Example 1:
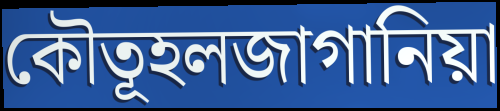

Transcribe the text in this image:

কৌতূহলজাগানিয়া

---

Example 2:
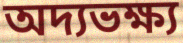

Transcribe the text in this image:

অদ্যভক্ষ্য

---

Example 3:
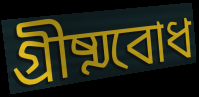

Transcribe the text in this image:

গ্রীষ্মবোধ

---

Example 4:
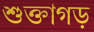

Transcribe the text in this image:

শুক্তাগড়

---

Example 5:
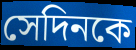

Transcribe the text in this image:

সেদিনকে